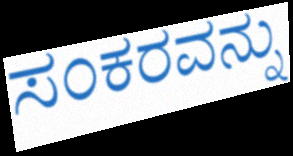
ಸಂಕರವನ್ನು